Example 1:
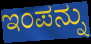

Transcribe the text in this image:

ಇಂಪನ್ನು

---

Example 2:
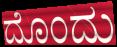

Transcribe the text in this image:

ದೊಂದು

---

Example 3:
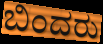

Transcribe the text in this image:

ಬಿಂದರು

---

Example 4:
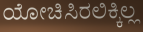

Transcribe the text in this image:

ಯೋಚಿಸಿರಲಿಕ್ಕಿಲ್ಲ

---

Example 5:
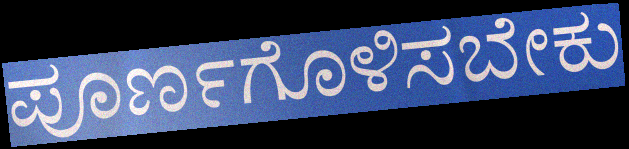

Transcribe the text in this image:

ಪೂರ್ಣಗೊಳಿಸಬೇಕು